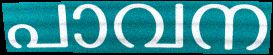
പാവന